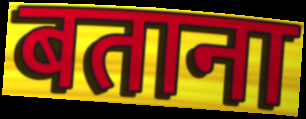
बताना